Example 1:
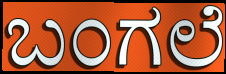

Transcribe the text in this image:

ಬಂಗಲೆ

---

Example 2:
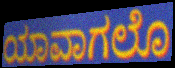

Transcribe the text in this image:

ಯಾವಾಗಲೊ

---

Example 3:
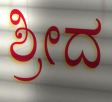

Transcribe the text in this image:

ಶ್ರೀದ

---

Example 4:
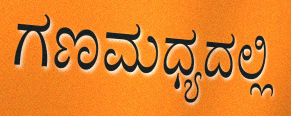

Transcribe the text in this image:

ಗಣಮಧ್ಯದಲ್ಲಿ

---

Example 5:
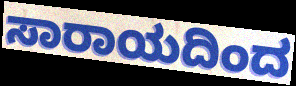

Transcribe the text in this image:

ಸಾರಾಯದಿಂದ